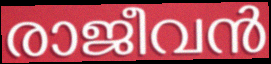
രാജീവൻ